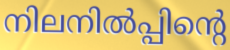
നിലനിൽപ്പിന്റെ